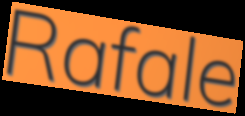
Rafale